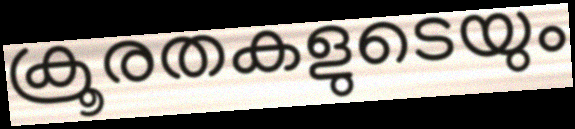
ക്രൂരതകളുടെയും